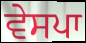
ਵੇਸਪਾ